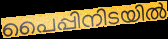
പൈപ്പിനിടയിൽ